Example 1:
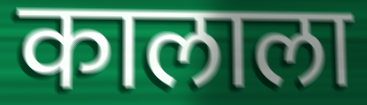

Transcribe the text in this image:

कालाला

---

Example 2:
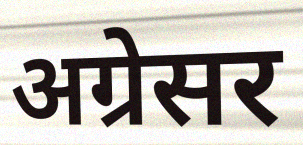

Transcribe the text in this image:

अग्रेसर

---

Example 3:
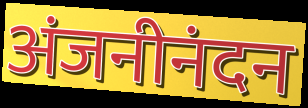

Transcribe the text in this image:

अंजनीनंदन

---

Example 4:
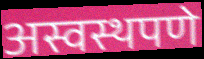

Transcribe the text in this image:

अस्वस्थपणे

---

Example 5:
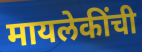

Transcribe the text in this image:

मायलेकींची